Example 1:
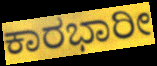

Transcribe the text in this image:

ಕಾರಭಾರೀ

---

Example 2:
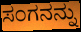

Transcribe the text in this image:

ಸಂಗನನ್ನು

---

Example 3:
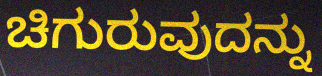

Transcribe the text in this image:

ಚಿಗುರುವುದನ್ನು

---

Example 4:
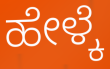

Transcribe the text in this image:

ಹೇಳ್ಕೆ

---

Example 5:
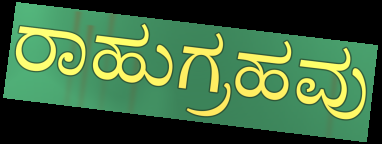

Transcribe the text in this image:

ರಾಹುಗ್ರಹವು